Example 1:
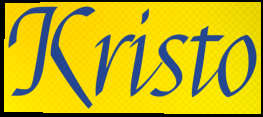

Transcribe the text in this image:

Kristo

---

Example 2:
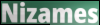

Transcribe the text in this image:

Nizames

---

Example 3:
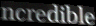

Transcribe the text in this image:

ncredible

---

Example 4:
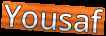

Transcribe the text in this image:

Yousaf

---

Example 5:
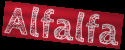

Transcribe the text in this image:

Alfalfa